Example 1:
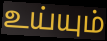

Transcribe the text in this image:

உய்யும்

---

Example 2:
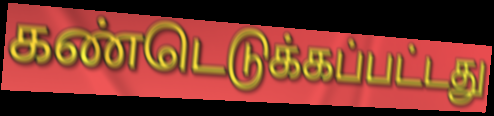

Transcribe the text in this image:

கண்டெடுக்கப்பட்டது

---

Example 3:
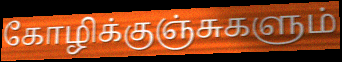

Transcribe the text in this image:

கோழிக்குஞ்சுகளும்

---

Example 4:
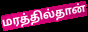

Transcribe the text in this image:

மரத்தில்தான்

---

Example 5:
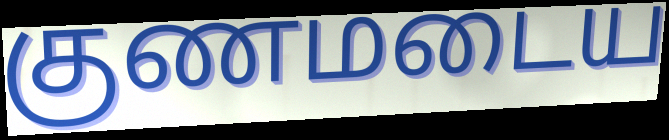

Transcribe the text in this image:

குணமடைய